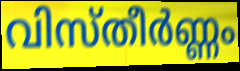
വിസ്തീർണ്ണം